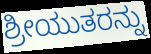
ಶ್ರೀಯುತರನ್ನು